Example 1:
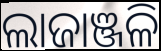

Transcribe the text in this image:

ଲାଜାଞ୍ଜଳି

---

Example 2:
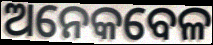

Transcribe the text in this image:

ଅନେକବେଳ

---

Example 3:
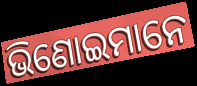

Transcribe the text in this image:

ଭିଣୋଇମାନେ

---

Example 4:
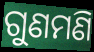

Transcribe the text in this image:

ଗୁଣମଣି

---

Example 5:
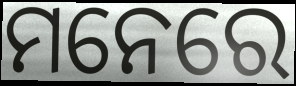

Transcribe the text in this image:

ମନେରେ